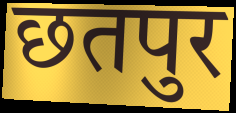
छतपुर